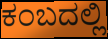
ಕಂಬದಲ್ಲಿ